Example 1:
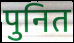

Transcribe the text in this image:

पुनित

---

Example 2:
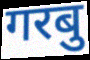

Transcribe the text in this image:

गरबु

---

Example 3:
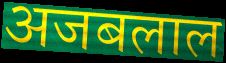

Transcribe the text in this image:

अजबलाल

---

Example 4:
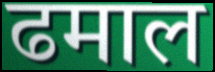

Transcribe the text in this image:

ढमाल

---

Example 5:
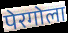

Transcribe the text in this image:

पेरगोला